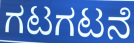
ಗಟಗಟನೆ